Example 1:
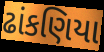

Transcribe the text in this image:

ઢાંકણિયા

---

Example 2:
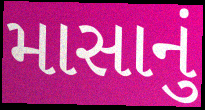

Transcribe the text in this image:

માસાનું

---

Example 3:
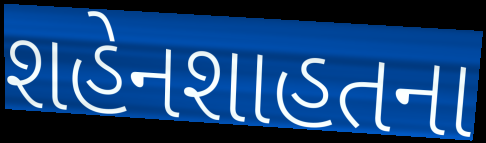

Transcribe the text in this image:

શહેનશાહતના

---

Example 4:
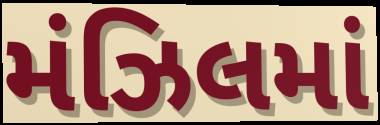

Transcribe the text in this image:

મંઝિલમાં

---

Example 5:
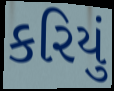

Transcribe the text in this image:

કરિયું